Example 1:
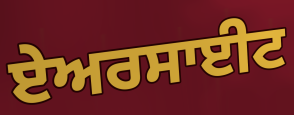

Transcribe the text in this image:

ਏਅਰਸਾਈਟ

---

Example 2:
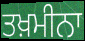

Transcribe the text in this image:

ਤਖ਼ਮੀਨਾ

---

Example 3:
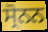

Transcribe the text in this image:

ਸ੍ਰੋਨਨ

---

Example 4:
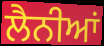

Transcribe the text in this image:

ਲੈਨੀਆਂ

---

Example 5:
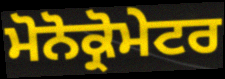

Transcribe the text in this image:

ਮੋਨੋਕ੍ਰੋਮੇਟਰ